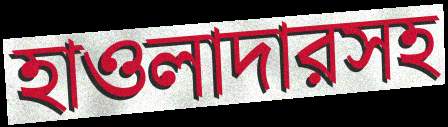
হাওলাদারসহ